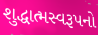
શુદ્ધાત્મસ્વરૂપનો